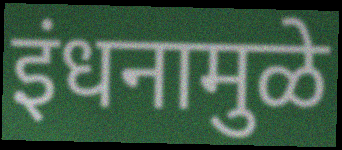
इंधनामुळे